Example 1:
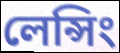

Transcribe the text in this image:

লেন্সিং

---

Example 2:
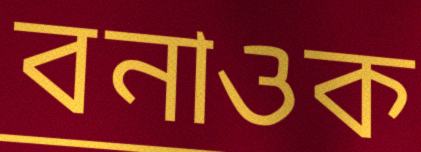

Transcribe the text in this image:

বনাওক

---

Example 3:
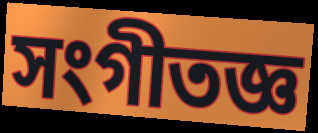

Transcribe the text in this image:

সংগীতজ্ঞ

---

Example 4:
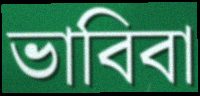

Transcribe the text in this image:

ভাবিবা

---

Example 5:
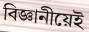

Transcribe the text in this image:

বিজ্ঞানীয়েই